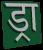
ड्रा